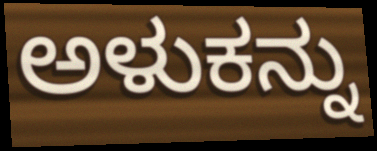
ಅಳುಕನ್ನು